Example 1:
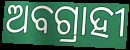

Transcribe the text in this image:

ଅବଗ୍ରାହୀ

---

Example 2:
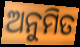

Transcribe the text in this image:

ଅନୁମିତ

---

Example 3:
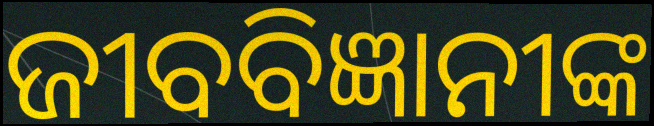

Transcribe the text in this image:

ଜୀବବିଜ୍ଞାନୀଙ୍କ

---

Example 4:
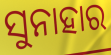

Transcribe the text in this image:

ସୁନାହାର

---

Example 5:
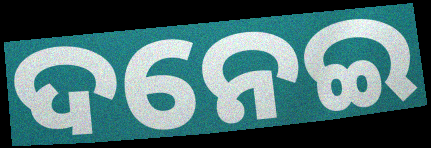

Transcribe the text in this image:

ଦନେଇ